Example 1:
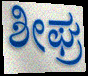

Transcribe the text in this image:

ಶೀಘ್ರ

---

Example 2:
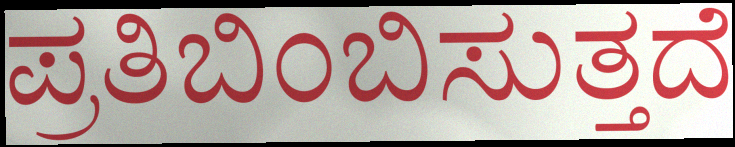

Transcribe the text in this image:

ಪ್ರತಿಬಿಂಬಿಸುತ್ತದೆ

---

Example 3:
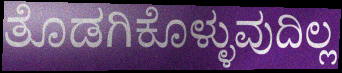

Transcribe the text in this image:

ತೊಡಗಿಕೊಳ್ಳುವುದಿಲ್ಲ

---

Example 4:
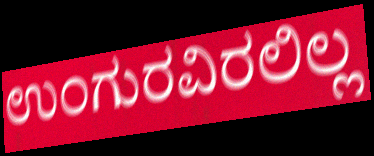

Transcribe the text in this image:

ಉಂಗುರವಿರಲಿಲ್ಲ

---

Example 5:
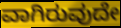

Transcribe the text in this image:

ವಾಗಿರುವುದೇ